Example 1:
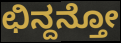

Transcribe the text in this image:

ಛಿನ್ದನ್ತೋ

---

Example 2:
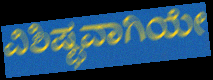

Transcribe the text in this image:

ವಿಶಿಷ್ಟವಾಗಿಯೇ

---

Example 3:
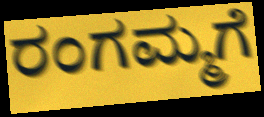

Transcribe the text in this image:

ರಂಗಮ್ಮಗೆ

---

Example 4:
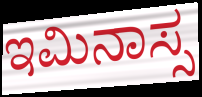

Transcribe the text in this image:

ಇಮಿನಾಸ್ಸ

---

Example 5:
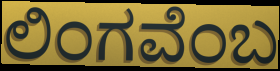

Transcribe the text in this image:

ಲಿಂಗವೆಂಬ